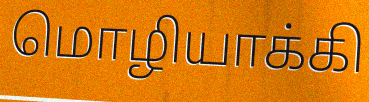
மொழியாக்கி